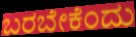
ಬರಬೇಕೆಂದು